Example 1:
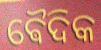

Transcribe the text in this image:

ଵୈଦିକ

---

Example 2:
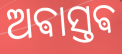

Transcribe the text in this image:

ଅଵାସ୍ତଵ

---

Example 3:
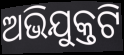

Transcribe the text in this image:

ଅଭିଯୁକ୍ତଟି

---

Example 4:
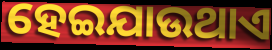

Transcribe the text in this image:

ହେଇଯାଉଥାଏ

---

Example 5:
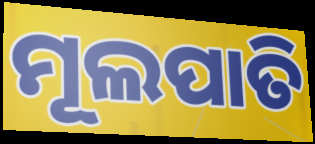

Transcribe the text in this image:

ମୂଲପାତି